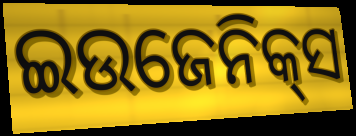
ଇଉଜେନିକ୍‌ସ